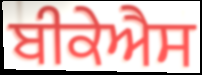
ਬੀਕੇਐਸ